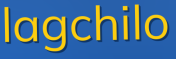
lagchilo